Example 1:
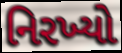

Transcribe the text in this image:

નિરખ્યો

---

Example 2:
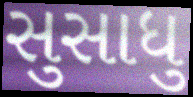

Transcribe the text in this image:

સુસાધુ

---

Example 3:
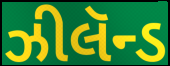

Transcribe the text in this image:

ઝીલૅન્ડ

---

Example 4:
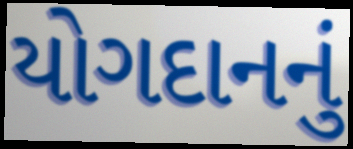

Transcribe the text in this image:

યોગદાનનું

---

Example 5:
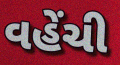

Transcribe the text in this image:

વહેંચી